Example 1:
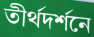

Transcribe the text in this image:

তীর্থদর্শনে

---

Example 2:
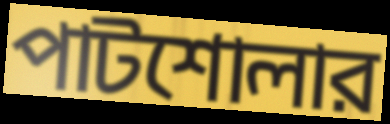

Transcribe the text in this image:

পাটশোলার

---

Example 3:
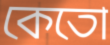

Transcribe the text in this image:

কেতো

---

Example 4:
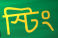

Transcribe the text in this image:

স্টিং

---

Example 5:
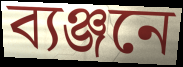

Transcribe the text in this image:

ব্যঞ্জনে